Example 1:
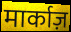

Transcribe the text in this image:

मार्काज़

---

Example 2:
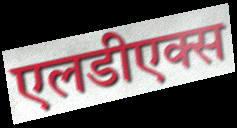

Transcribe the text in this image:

एलडीएक्स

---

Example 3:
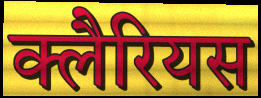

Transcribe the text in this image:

क्लैरियस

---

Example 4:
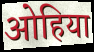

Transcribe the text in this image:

ओहिया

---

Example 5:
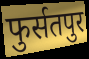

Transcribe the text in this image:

फुर्सतपुर